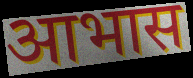
आभास